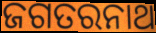
ଜଗତରନାଥ